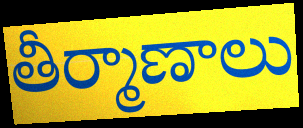
తీర్మాణాలు